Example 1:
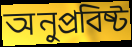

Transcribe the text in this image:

অনুপ্রবিষ্ট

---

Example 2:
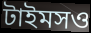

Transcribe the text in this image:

টাইমসও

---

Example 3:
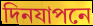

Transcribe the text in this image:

দিনযাপনে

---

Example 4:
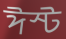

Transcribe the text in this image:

ঈস্ট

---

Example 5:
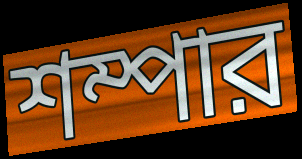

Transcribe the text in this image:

শম্পার